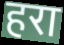
हरा